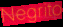
Negrito